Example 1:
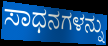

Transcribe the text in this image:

ಸಾಧನಗಳನ್ನು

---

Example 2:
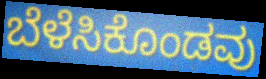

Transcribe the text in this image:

ಬೆಳೆಸಿಕೊಂಡವು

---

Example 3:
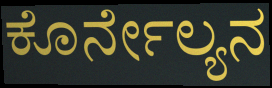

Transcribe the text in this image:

ಕೊರ್ನೇಲ್ಯನ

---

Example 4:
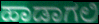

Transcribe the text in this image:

ಹಾಡಾಗಲಿ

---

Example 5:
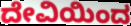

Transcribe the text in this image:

ದೇವಿಯಿಂದ